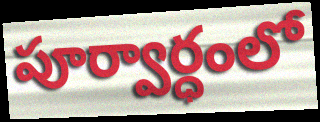
పూర్వార్ధంలో